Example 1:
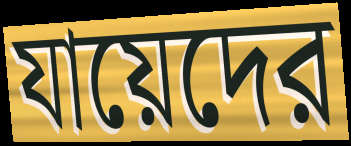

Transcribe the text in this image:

যায়েদের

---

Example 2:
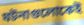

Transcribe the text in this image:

ঘটনাগুলোকেই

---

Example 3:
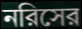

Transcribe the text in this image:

নরিসের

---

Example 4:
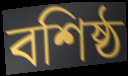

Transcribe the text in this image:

বশিষ্ঠ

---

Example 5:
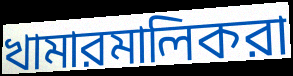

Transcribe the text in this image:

খামারমালিকরা